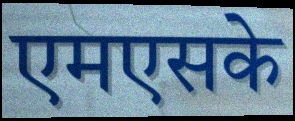
एमएसके